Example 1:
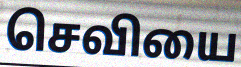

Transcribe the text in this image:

செவியை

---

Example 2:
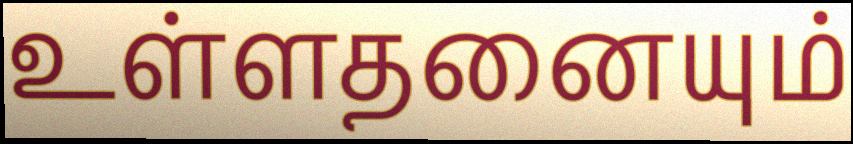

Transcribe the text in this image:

உள்ளதனையும்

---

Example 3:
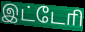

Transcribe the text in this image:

இட்டேரி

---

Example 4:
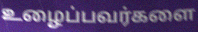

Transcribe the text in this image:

உழைப்பவர்களை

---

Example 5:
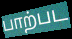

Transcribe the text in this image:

பாற்பட